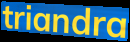
triandra